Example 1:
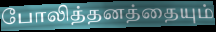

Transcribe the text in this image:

போலித்தனத்தையும்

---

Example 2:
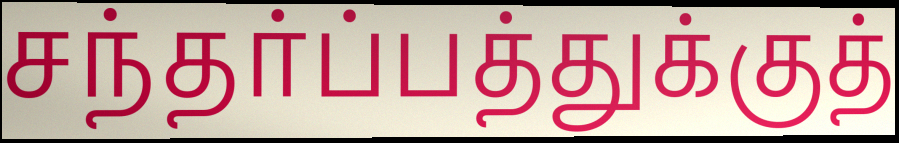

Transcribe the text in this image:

சந்தர்ப்பத்துக்குத்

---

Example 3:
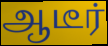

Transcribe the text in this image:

ஆடீர்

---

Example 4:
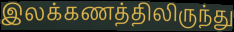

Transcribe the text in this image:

இலக்கணத்திலிருந்து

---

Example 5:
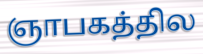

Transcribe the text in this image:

ஞாபகத்தில